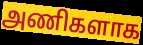
அணிகளாக